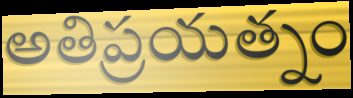
అతిప్రయత్నం